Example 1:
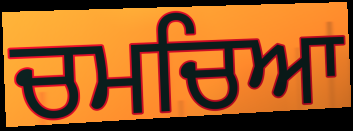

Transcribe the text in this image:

ਚਮਚਿਆ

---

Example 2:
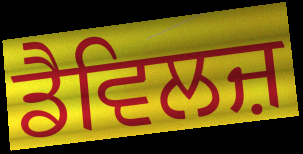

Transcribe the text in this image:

ਡੈਵਿਲਜ਼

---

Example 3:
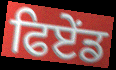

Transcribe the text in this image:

ਫਿਏਂਡ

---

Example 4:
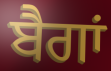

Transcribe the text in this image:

ਬੈਗਾਂ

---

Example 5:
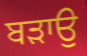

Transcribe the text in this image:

ਬਡ਼ਾਉ